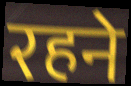
रहने